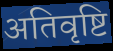
अतिवृष्टि